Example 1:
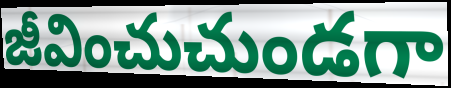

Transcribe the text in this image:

జీవించుచుండగా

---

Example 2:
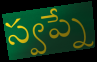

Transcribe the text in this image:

స్వప్నే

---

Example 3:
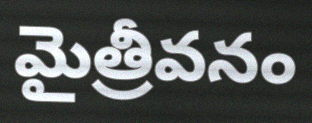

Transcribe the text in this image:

మైత్రీవనం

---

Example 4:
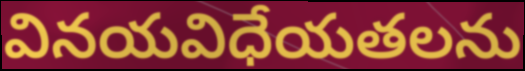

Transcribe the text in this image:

వినయవిధేయతలను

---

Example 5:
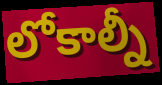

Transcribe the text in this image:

లోకాల్నీ